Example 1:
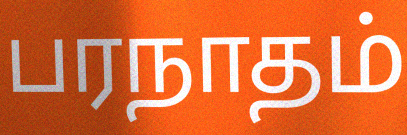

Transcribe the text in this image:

பரநாதம்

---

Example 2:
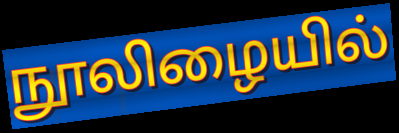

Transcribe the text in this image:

நூலிழையில்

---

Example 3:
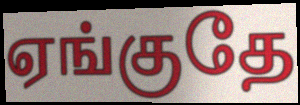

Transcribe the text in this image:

ஏங்குதே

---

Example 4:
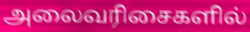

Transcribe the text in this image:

அலைவரிசைகளில்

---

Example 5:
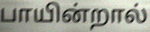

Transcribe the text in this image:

பாயின்றால்